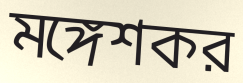
মঙ্গেশকর